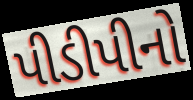
પીડીપીનો